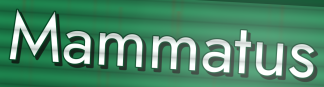
Mammatus